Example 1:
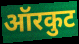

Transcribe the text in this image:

ऑरकुट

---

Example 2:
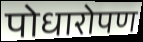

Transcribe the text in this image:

पोधारोपण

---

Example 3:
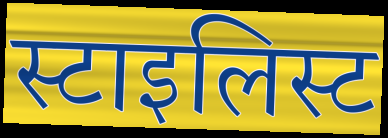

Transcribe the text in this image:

स्टाइलिस्ट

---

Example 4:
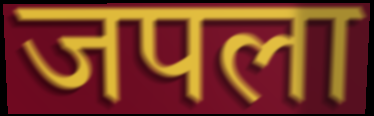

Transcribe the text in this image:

जपला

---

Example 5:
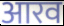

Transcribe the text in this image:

आरव